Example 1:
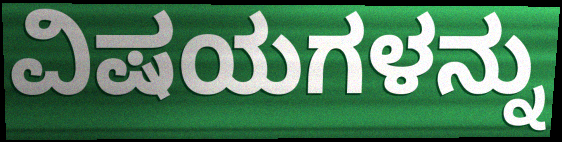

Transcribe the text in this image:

ವಿಷಯಗಳನ್ನು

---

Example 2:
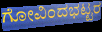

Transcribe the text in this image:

ಗೋವಿಂದಭಟ್ಟರ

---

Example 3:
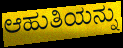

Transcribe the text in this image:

ಆಹುತಿಯನ್ನು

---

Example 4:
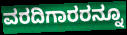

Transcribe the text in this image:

ವರದಿಗಾರರನ್ನೂ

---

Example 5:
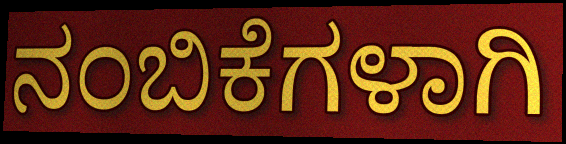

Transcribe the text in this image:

ನಂಬಿಕೆಗಳಾಗಿ